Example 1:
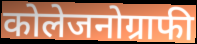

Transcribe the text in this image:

कोलेजनोग्राफी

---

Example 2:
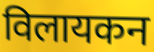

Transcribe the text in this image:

विलायकन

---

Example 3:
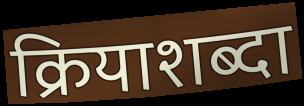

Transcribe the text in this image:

क्रियाशब्दा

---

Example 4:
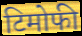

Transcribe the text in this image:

टिमोफी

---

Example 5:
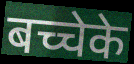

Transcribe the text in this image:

बच्चेके